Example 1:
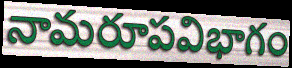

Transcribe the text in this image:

నామరూపవిభాగం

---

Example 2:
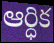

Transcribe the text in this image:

ఆర్ధిక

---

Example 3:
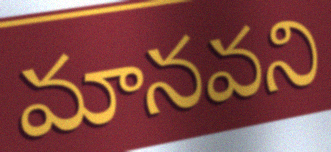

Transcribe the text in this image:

మానవని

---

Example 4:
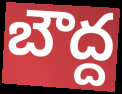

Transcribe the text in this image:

బౌద్ద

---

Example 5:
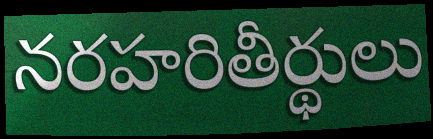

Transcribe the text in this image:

నరహరితీర్థులు